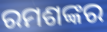
ରମଶଙ୍କର